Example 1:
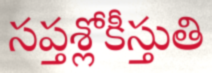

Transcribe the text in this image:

సప్తశ్లోకీస్తుతి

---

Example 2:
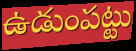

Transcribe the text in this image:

ఉడుంపట్టు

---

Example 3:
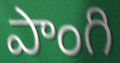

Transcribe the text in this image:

పాంగి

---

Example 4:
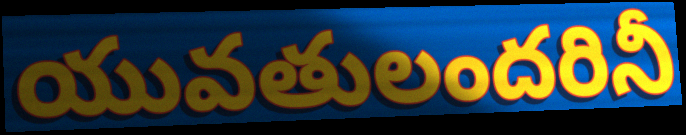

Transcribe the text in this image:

యువతులందరినీ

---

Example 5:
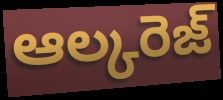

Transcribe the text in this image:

ఆల్కరెజ్